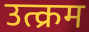
उत्क्रम